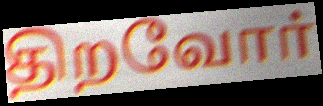
திறவோர்